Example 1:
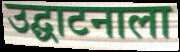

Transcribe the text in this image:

उद्घाटनाला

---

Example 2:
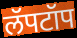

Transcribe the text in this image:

लॅपटॉप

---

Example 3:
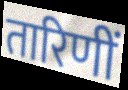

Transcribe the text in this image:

तारिणीं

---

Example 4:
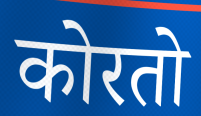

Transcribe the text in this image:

कोरतो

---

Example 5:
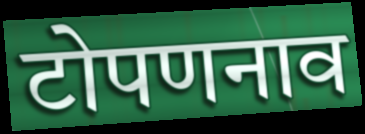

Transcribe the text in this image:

टोपणनाव